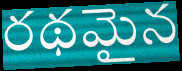
రథమైన